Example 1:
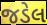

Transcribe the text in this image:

જડેલ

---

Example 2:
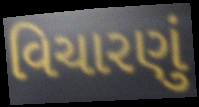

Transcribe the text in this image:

વિચારણું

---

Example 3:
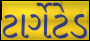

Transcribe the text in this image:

ટાર્ગેટેડ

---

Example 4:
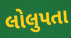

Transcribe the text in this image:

લોલુપતા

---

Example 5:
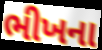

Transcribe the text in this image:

ભીખના